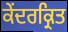
ਕੇਂਦਰਕ੍ਰਿਤ